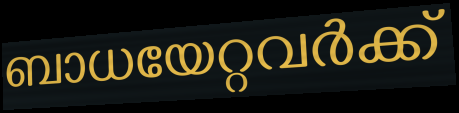
ബാധയേറ്റവർക്ക്